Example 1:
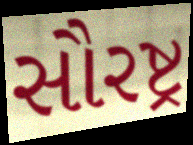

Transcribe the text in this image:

સૌરષ્ટ્ર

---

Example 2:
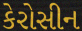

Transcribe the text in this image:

કેરોસીન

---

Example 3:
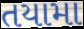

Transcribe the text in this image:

તયામા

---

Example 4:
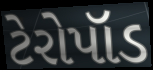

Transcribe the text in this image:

ટેરોપૉડ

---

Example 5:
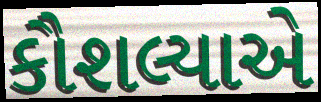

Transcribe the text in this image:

કૌશલ્યાએ